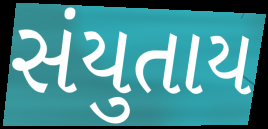
સંયુતાય